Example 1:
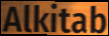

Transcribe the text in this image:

Alkitab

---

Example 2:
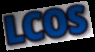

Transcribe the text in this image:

LCOS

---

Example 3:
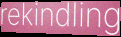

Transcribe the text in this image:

rekindling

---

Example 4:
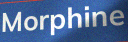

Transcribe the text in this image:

Morphine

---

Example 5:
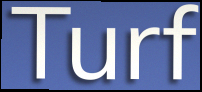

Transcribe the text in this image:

Turf